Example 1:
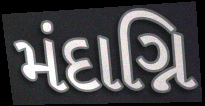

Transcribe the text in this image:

મંદાગ્નિ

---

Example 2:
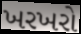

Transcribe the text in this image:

ખરખરો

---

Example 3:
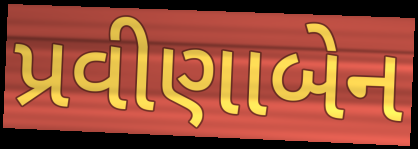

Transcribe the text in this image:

પ્રવીણાબેન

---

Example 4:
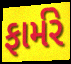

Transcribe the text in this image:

ફાર્મરે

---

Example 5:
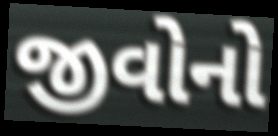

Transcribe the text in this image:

જીવોનો